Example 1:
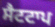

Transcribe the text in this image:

ਸੈਟਟਾਪ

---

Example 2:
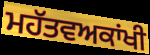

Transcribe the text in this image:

ਮਹੱਤਵਅਕਾਂਖੀ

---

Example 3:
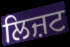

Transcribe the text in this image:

ਲਿਜ਼ਟ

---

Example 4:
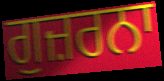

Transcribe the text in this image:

ਗੁਜ਼ਰਨਾ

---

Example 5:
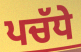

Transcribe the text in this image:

ਪਚੱਧੇ